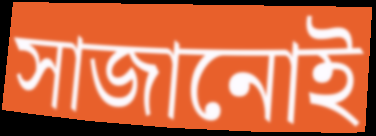
সাজানোই